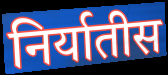
निर्यातीस